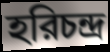
হরিচন্দ্র